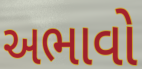
અભાવો